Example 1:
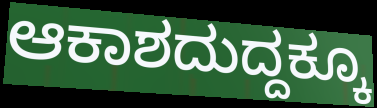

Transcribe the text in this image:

ಆಕಾಶದುದ್ದಕ್ಕೂ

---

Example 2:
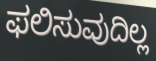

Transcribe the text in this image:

ಫಲಿಸುವುದಿಲ್ಲ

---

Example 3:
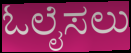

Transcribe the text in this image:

ಓಲೈಸಲು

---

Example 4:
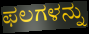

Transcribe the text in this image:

ಫಲಗಳನ್ನು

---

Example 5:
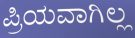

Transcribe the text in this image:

ಪ್ರಿಯವಾಗಿಲ್ಲ